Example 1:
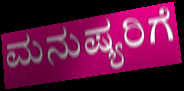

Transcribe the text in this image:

ಮನುಷ್ಯರಿಗೆ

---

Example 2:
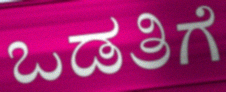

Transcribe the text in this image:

ಒಡತಿಗೆ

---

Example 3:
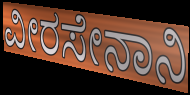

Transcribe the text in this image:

ವೀರಸೇನಾನಿ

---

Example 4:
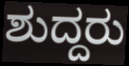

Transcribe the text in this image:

ಶುದ್ದರು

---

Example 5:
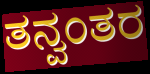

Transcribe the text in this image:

ತನ್ವಂತರ